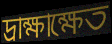
দ্রাক্ষাক্ষেত